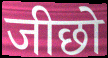
जीछो